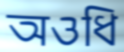
অওধি